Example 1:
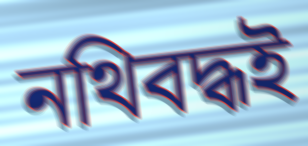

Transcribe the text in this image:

নথিবদ্ধই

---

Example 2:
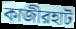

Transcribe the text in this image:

কাজীরহাট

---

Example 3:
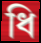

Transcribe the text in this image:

ধি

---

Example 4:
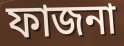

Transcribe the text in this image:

ফাজনা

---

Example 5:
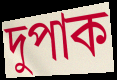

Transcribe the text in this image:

দুপাক